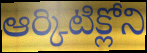
ఆర్కిటిక్లోని